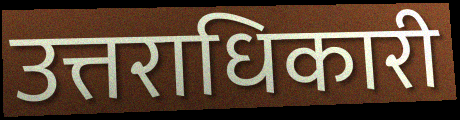
उत्तराधिकारी